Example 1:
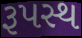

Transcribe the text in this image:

રૂપસ્થ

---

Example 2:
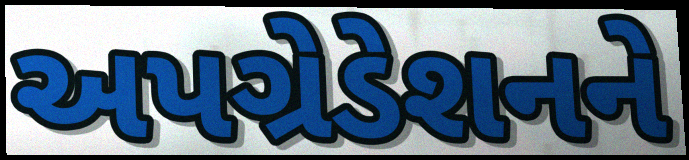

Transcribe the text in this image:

અપગ્રેડેશનને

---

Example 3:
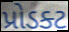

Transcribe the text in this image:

પ્રોડક્ટ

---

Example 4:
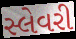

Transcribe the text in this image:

સ્લેવરી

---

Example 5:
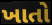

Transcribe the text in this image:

ખાતો